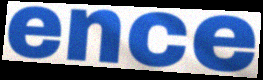
ence